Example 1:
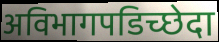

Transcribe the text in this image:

अविभागपडिच्छेदा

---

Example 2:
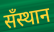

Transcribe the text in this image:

सँस्थान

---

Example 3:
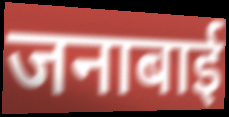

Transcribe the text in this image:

जनाबाई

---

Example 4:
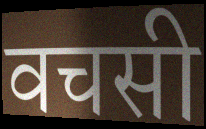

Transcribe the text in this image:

वचसी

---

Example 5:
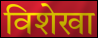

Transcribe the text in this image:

विशेखा